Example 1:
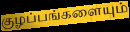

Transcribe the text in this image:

குழப்பங்களையும்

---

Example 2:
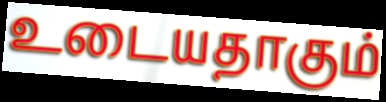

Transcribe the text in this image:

உடையதாகும்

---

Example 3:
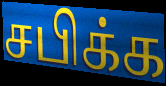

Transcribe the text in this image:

சபிக்க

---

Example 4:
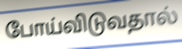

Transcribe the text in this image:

போய்விடுவதால்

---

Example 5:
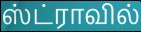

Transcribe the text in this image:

ஸ்ட்ராவில்